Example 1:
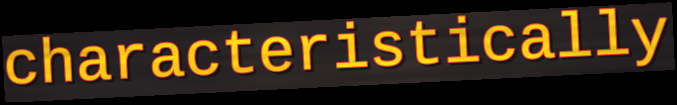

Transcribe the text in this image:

characteristically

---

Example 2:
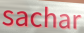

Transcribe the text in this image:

sachar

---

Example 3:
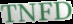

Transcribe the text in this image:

TNFD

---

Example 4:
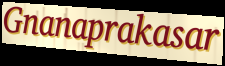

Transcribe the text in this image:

Gnanaprakasar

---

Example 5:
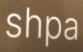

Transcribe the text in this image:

shpa